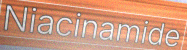
Niacinamide